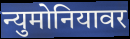
न्युमोनियावर